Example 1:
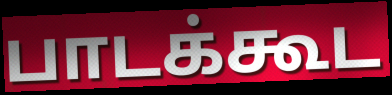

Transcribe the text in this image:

பாடக்கூட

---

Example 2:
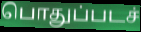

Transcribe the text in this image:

பொதுப்படச்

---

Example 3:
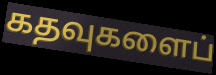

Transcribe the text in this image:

கதவுகளைப்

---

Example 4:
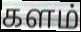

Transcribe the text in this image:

களம்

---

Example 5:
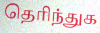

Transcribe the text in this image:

தெரிந்துக